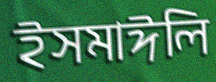
ইসমাঈলি